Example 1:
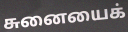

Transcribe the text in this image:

சுனையைக்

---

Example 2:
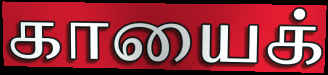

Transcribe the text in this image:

காயைக்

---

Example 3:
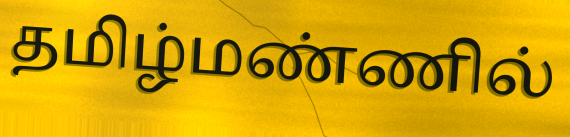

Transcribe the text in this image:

தமிழ்மண்ணில்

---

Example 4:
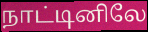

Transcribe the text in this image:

நாட்டினிலே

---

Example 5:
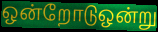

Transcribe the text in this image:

ஒன்றோடுஒன்று